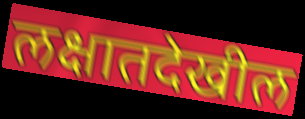
लक्षातदेखील